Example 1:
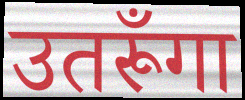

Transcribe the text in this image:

उतरूँगा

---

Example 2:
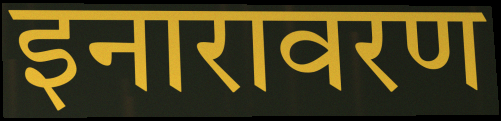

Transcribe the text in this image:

इनारावरण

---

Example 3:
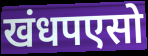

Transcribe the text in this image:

खंधपएसो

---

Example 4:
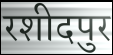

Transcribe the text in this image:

रशीदपुर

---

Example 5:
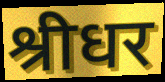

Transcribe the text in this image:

श्रीधर